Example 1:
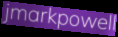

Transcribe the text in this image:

jmarkpowell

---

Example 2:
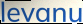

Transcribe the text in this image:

levanu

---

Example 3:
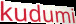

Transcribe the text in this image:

kudumi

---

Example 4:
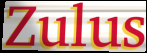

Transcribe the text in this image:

Zulus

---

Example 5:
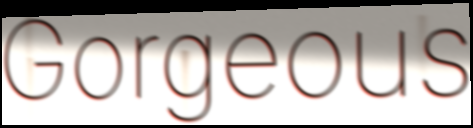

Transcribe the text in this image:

Gorgeous